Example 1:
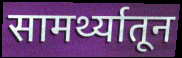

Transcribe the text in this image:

सामर्थ्यातून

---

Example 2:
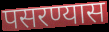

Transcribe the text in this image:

पसरण्यास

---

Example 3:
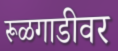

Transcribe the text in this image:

रूळगाडीवर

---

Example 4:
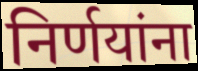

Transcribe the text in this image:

निर्णयांना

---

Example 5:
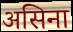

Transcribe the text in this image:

असिना